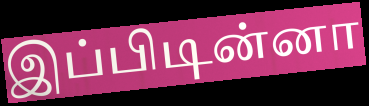
இப்பிடின்னா